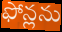
ఫోన్లను